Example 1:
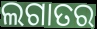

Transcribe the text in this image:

ଲଗାତର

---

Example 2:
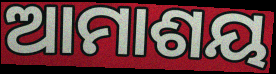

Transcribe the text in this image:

ଆମାଶୟ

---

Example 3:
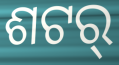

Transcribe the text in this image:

ଶଟର୍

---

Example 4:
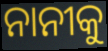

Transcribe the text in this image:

ନାନୀକୁ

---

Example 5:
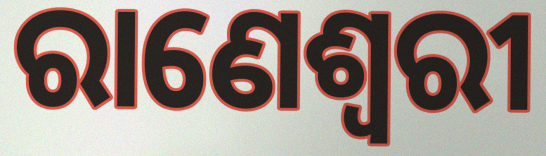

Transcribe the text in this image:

ରାଣେଶ୍ୱରୀ